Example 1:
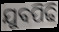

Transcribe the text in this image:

ଯୁବପିଢି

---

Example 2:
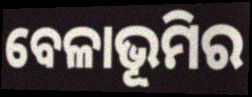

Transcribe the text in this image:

ବେଳାଭୂମିର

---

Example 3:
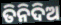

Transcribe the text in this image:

ତିନିଦିଅ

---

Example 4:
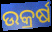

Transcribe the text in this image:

ଉକ୍ରର୍ଷ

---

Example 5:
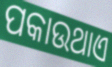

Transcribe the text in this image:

ପକାଉଥାଏ